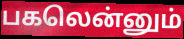
பகலென்னும்